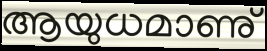
ആയുധമാണു്